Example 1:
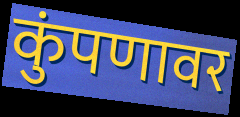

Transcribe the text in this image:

कुंपणावर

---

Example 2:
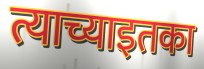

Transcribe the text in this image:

त्याच्याइतका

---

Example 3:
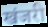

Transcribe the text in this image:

खंजरी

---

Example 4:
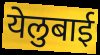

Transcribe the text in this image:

येलुबाई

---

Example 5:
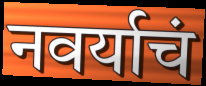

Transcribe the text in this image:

नवर्याचं